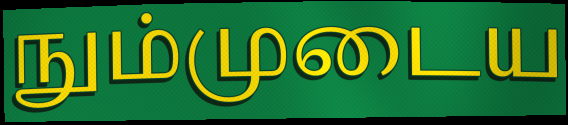
நும்முடைய